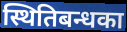
स्थितिबन्धका